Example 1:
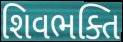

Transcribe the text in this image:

શિવભક્તિ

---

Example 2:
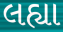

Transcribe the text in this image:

લહ્યા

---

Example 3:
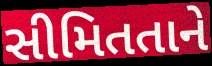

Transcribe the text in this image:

સીમિતતાને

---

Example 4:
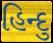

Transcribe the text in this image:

હિન્દુ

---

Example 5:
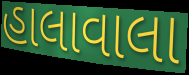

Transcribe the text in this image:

હાલાવાલા